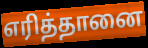
எரித்தானை